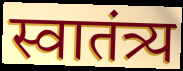
स्वातंत्र्य